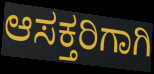
ಆಸಕ್ತರಿಗಾಗಿ